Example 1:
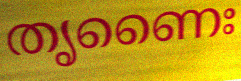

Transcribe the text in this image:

തൃണൈഃ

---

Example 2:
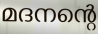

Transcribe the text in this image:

മദനന്റെ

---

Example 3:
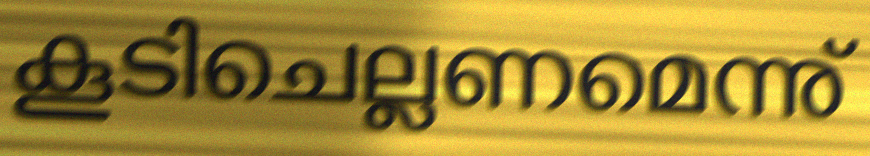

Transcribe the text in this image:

കൂടിചെല്ലണമെന്നു്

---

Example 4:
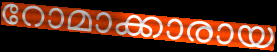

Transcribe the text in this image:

റോമാക്കാരായ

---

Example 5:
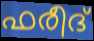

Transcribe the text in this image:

ഫരീദ്